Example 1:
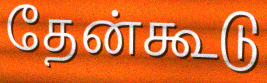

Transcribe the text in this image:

தேன்கூடு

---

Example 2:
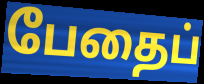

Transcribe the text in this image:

பேதைப்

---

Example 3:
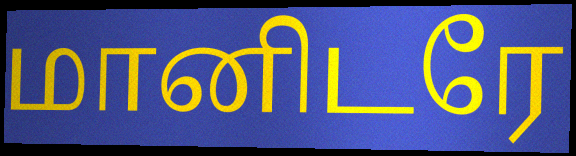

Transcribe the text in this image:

மானிடரே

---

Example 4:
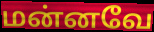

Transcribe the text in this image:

மன்னவே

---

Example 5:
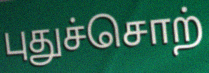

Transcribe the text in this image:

புதுச்சொற்